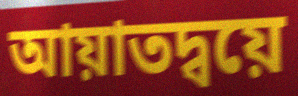
আয়াতদ্বয়ে